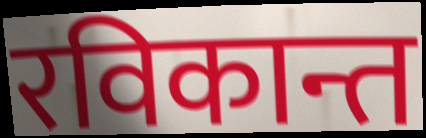
रविकान्त